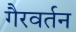
गैरवर्तन